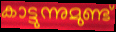
കാട്ടുന്നുമുണ്ട്